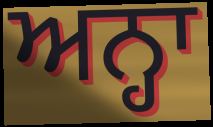
ਅਨ੍ਹਾ